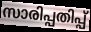
സാരിപ്പതിപ്പ്